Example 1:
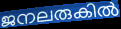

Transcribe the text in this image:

ജനലരുകിൽ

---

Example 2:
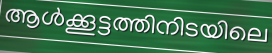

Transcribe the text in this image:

ആൾക്കൂട്ടത്തിനിടയിലെ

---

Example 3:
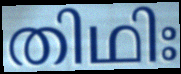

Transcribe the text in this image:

തിഥിഃ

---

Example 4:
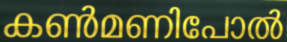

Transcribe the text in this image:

കൺമണിപോൽ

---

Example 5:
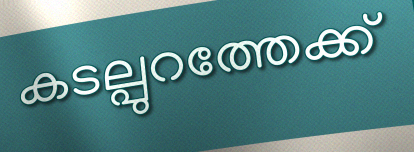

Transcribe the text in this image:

കടല്പുറത്തേക്ക്